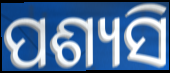
ପଶ୍ୟସି